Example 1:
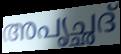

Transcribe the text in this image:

അപൃച്ഛദ്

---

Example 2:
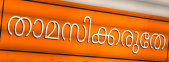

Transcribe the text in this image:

താമസിക്കരുതേ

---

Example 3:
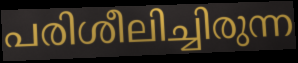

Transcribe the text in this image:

പരിശീലിച്ചിരുന്ന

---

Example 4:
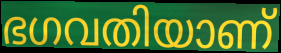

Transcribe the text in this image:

ഭഗവതിയാണ്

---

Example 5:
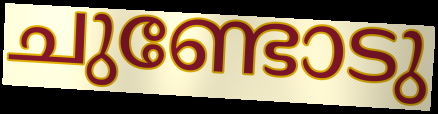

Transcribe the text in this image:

ചുണ്ടോടു